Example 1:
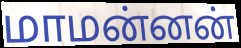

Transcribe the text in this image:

மாமன்னன்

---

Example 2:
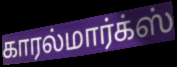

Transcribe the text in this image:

காரல்மார்க்ஸ்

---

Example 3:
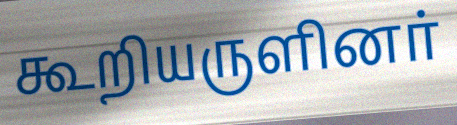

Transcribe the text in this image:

கூறியருளினர்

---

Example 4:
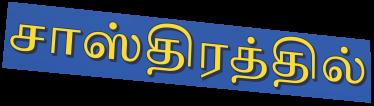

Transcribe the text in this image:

சாஸ்திரத்தில்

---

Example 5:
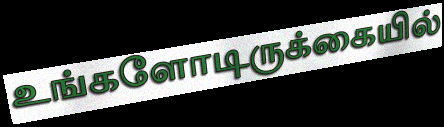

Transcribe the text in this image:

உங்களோடிருக்கையில்